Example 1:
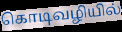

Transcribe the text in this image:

கொடிவழியில்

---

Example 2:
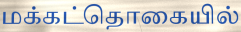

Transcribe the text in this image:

மக்கட்தொகையில்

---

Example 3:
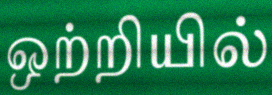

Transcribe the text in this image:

ஒற்றியில்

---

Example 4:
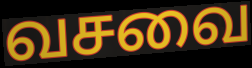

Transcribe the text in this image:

வசவை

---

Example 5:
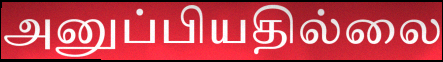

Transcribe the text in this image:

அனுப்பியதில்லை